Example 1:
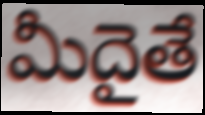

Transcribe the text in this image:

మీదైతే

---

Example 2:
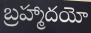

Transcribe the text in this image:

బ్రహ్మాదయో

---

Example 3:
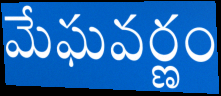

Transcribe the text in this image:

మేఘవర్ణం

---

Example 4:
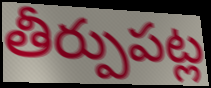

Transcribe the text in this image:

తీర్పుపట్ల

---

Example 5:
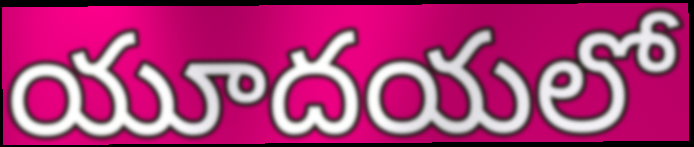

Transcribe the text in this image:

యూదయలో